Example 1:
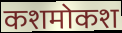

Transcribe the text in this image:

कशमोकश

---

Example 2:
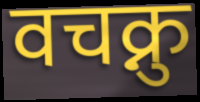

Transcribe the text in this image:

वचक्नु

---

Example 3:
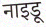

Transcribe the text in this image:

नाइडू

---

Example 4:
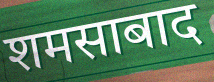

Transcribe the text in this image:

शमसाबाद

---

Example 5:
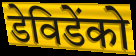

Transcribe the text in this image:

डेविडेंको